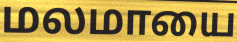
மலமாயை